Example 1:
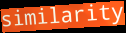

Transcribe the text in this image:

similarity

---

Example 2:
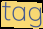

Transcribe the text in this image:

tag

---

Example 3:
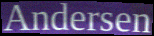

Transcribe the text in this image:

Andersen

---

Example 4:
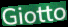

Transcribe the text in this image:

Giotto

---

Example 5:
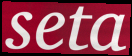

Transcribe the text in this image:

seta